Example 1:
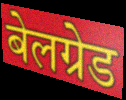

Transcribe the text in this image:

बेलग्रेड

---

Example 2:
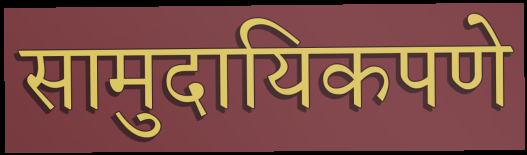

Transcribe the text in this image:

सामुदायिकपणे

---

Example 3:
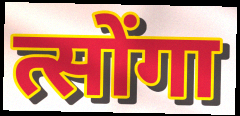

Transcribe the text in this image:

त्सोंगा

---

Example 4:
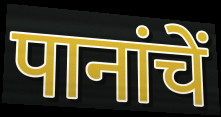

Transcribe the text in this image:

पानांचें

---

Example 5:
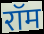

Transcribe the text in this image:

रॉम